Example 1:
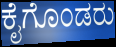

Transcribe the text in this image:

ಕೈಗೊಂಡರು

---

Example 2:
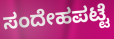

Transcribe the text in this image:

ಸಂದೇಹಪಟ್ಟೆ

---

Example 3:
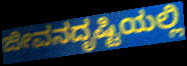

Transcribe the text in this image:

ಜೀವನದೃಷ್ಟಿಯಲ್ಲಿ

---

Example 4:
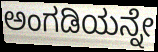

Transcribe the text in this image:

ಅಂಗಡಿಯನ್ನೇ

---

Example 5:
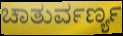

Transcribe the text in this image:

ಚಾತುರ್ವರ್ಣ್ಯ